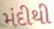
મંદીથી